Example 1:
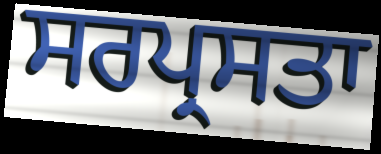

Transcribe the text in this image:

ਸਰਪ੍ਰਸਤਾ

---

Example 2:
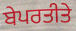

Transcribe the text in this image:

ਬੇਪਰਤੀਤੇ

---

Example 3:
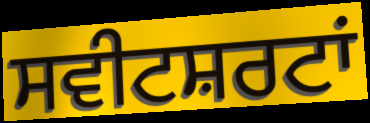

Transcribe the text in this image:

ਸਵੀਟਸ਼ਰਟਾਂ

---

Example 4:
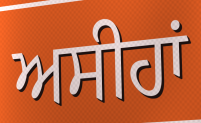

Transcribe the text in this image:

ਅਸੀਹਾਂ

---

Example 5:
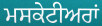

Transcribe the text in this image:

ਮਸਕੇਟੀਅਰਾਂ